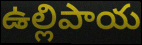
ఉల్లిపాయ